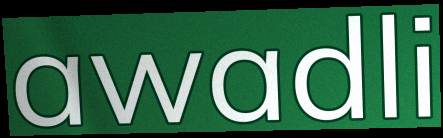
awadli